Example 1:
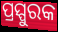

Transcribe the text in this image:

ପ୍ରସ୍ପୁରକ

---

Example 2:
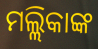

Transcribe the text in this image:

ମଲ୍ଲିକାଙ୍କ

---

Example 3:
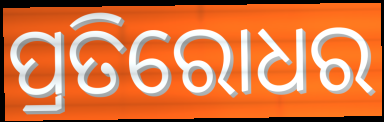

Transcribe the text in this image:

ପ୍ରତିରୋଧର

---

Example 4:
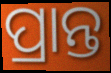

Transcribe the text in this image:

ପ୍ରାନ୍ତ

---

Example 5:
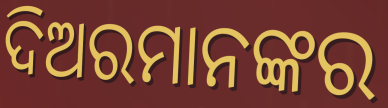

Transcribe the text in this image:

ଦିଅରମାନଙ୍କର